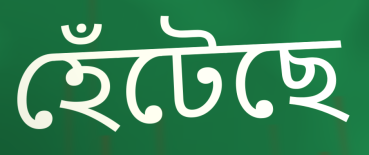
হেঁটেছে